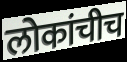
लोकांचीच